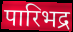
पारिभद्र